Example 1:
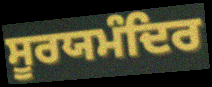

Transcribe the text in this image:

ਸੂਰਯਮੰਦਿਰ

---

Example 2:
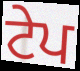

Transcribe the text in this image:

ਟੇਪ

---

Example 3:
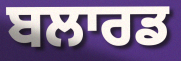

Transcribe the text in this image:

ਬਲਾਰਡ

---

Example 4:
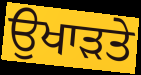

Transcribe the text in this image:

ਉਖਾੜਤੇ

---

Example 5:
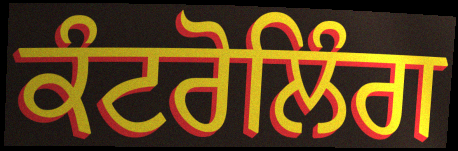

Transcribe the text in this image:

ਕੰਟਰੋਲਿੰਗ